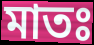
মাতঃ